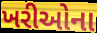
ખરીઓના